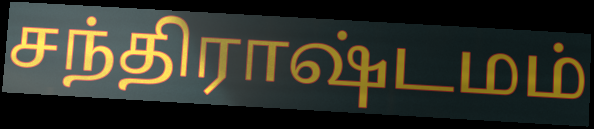
சந்திராஷ்டமம்